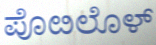
ಪೊೞಲೊಳ್